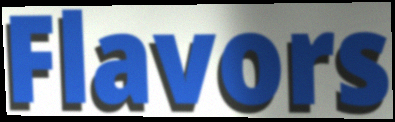
Flavors